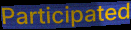
Participated